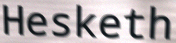
Hesketh